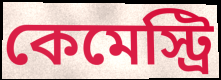
কেমেস্ট্রি